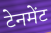
टेनमेंट